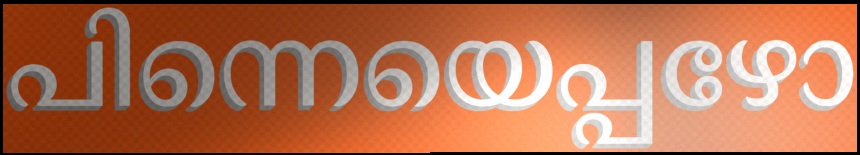
പിന്നെയെപ്പഴോ